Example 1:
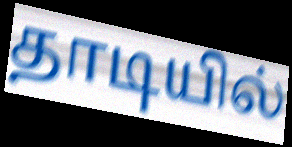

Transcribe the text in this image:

தாடியில்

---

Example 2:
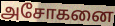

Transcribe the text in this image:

அசோகனை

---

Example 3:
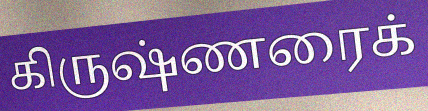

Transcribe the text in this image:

கிருஷ்ணரைக்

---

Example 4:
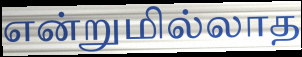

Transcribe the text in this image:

என்றுமில்லாத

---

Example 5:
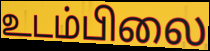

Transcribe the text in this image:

உடம்பிலை